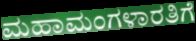
ಮಹಾಮಂಗಳಾರತಿಗೆ